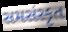
સમસંસ્કૃત